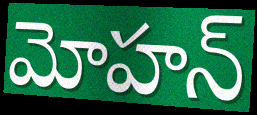
మోహన్